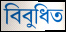
বিবুধিত